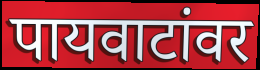
पायवाटांवर